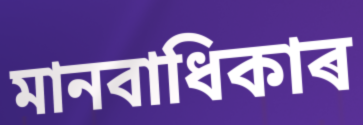
মানবাধিকাৰ